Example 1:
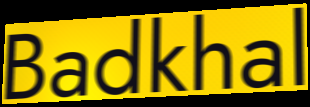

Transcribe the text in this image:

Badkhal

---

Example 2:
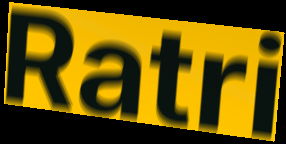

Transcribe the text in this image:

Ratri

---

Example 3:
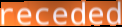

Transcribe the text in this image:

receded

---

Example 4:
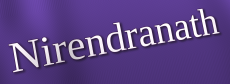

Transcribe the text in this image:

Nirendranath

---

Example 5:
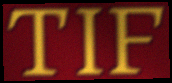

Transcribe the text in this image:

TIF